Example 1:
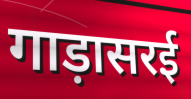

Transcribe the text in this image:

गाड़ासरई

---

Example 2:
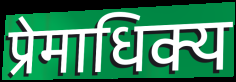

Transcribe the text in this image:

प्रेमाधिक्य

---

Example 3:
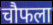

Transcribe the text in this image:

चौफला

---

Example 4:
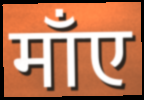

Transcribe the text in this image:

माँए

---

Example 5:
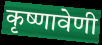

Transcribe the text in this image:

कृष्णावेणी